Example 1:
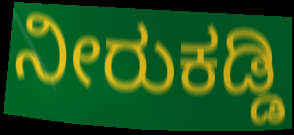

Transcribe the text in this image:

ನೀರುಕಡ್ಡಿ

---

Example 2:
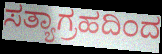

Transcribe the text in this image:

ಸತ್ಯಾಗ್ರಹದಿಂದ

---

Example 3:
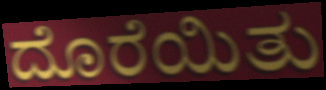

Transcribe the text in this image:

ದೊರೆಯಿತು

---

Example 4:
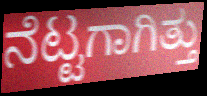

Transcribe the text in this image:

ನೆಟ್ಟಗಾಗಿತ್ತು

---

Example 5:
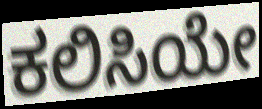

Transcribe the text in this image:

ಕಲಿಸಿಯೇ